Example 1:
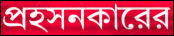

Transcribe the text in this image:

প্রহসনকারের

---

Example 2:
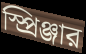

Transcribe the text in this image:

স্প্রিঞ্জার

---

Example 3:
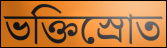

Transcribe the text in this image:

ভক্তিস্রোত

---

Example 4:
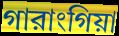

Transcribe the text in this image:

গারাংগিয়া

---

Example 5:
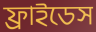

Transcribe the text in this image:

ফ্রাইডেস